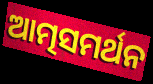
ଆତ୍ମସମର୍ଥନ